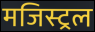
मजिस्ट्रल